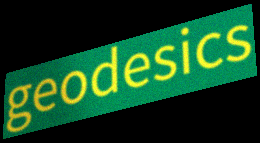
geodesics